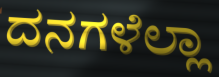
ದನಗಳೆಲ್ಲಾ